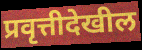
प्रवृत्तीदेखील